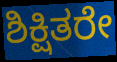
ಶಿಕ್ಷಿತರೇ